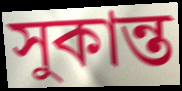
সুকান্ত